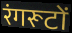
रंगरूटों